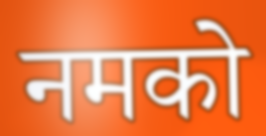
नमको